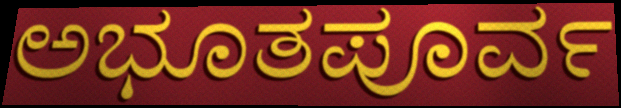
ಅಭೂತಪೂರ್ವ